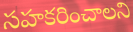
సహకరించాలని